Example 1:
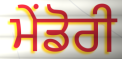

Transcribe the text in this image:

ਮੇਂਡੋਰੀ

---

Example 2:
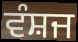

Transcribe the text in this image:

ਵੰਸ਼ਜ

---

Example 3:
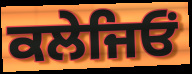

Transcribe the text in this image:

ਕਲੇਜਿਓਂ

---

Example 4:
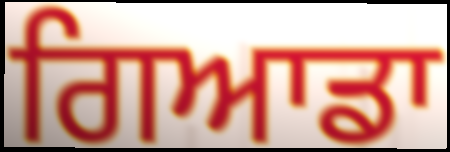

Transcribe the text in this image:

ਗਿਆਡਾ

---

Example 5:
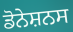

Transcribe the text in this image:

ਡੋਨੇਸ਼ਨਸ